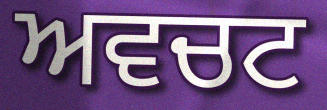
ਅਵਚਟ